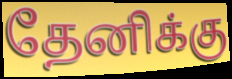
தேனிக்கு